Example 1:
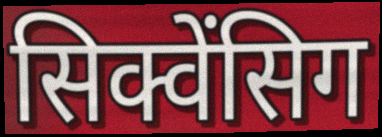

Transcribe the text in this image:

सिक्वेंसिग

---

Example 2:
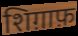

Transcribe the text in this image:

शिग़ाफ़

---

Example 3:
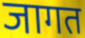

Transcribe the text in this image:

जागत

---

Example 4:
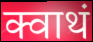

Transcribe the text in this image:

क्वाथं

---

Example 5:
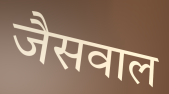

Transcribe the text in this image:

जैसवाल